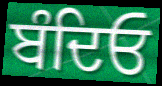
ਬੰਦਿਓ